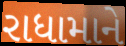
રાધામાને